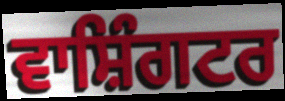
ਵਾਸ਼ਿੰਗਟਰ